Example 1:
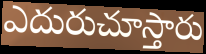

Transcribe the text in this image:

ఎదురుచూస్తారు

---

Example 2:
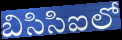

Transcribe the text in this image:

బిసిసిఐలో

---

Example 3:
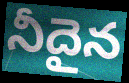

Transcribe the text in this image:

నీదైన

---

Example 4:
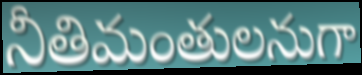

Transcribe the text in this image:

నీతిమంతులనుగా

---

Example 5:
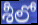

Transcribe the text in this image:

శీలో